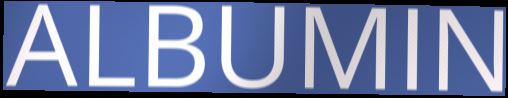
ALBUMIN